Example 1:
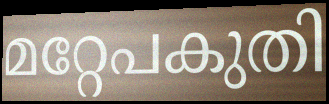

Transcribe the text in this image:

മറ്റേപകുതി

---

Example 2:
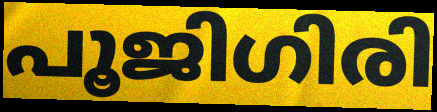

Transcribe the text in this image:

പൂജിഗിരി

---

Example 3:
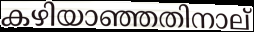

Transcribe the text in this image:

കഴിയാഞ്ഞതിനാല്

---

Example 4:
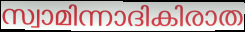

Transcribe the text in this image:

സ്വാമിന്നാദികിരാത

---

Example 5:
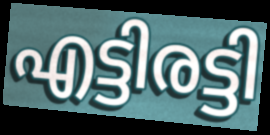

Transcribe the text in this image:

എട്ടിരട്ടി